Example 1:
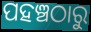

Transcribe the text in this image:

ପହଞ୍ଚଠାରୁ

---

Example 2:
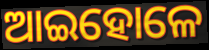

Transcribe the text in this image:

ଆଇହୋଳେ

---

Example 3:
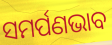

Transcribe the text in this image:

ସମର୍ପଣଭାବ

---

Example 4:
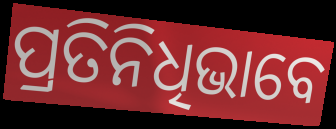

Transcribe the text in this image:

ପ୍ରତିନିଧିଭାବେ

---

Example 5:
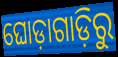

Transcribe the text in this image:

ଘୋଡ଼ାଗାଡ଼ିରୁ